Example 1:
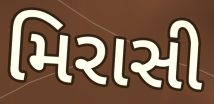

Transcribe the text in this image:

મિરાસી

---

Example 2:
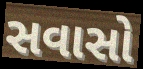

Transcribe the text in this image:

સવાસો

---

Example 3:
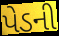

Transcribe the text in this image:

પેડની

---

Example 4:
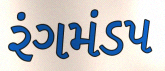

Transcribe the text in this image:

રંગમંડપ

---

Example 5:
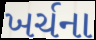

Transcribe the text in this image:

ખર્ચના